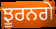
ਝੂਰਨਗੇ